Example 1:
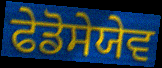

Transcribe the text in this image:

ਫੇਡੋਸੇਯੇਵ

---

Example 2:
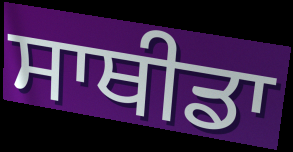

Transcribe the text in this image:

ਸਾਥੀਡਾ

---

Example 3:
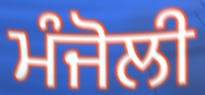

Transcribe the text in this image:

ਮੰਜੋਲੀ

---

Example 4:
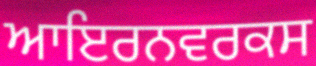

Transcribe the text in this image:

ਆਇਰਨਵਰਕਸ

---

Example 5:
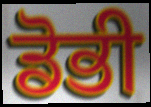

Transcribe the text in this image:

ਡੋਭੀ